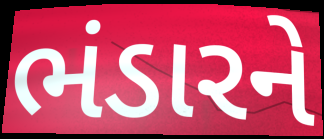
ભંડારને